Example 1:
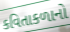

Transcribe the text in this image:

કવિતાકળાનો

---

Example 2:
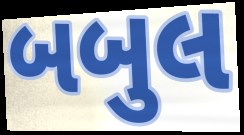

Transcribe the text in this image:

બબુલ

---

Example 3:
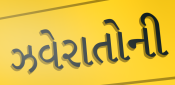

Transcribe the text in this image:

ઝવેરાતોની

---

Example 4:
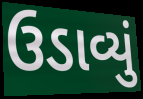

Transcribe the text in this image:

ઉડાવ્યું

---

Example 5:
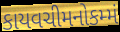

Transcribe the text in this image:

કાયવચીમનોકમ્મં